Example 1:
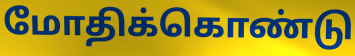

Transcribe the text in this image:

மோதிக்கொண்டு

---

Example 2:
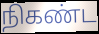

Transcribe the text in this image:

நிகண்ட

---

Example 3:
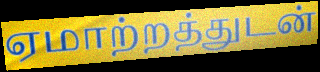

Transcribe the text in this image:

ஏமாற்றத்துடன்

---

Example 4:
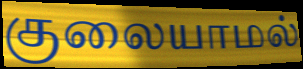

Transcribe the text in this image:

குலையாமல்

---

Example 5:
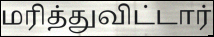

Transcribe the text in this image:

மரித்துவிட்டார்